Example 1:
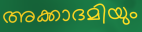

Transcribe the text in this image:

അക്കാദമിയും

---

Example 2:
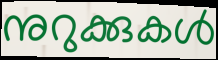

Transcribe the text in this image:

നുറുക്കുകൾ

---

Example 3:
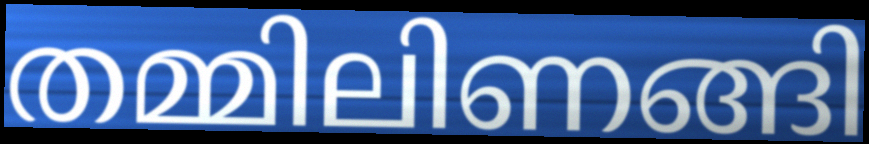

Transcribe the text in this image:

തമ്മിലിണങ്ങി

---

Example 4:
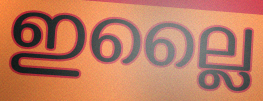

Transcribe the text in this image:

ഇല്ലൈ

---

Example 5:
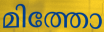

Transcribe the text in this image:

മിത്തോ